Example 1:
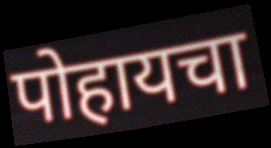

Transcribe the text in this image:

पोहायचा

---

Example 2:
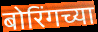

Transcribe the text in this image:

बोरिंगच्या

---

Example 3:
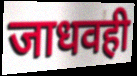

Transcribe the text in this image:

जाधवही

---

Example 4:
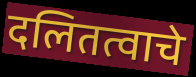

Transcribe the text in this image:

दलितत्वाचे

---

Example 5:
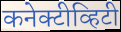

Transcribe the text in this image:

कनेक्टीव्हिटी